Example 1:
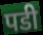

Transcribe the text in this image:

पडी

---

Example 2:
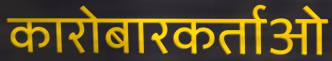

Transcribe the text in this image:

कारोबारकर्ताओ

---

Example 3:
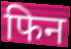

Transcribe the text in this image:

फिन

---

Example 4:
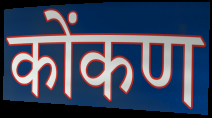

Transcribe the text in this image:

कोंकण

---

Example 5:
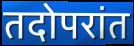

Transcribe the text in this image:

तदोपरांत